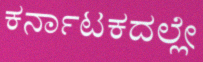
ಕರ್ನಾಟಕದಲ್ಲೇ